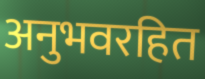
अनुभवरहित